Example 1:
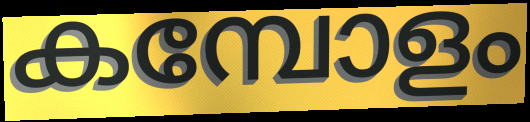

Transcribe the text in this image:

കമ്പോളം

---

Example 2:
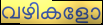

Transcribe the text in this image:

വഴികളോ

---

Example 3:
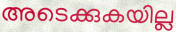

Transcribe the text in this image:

അടെക്കുകയില്ല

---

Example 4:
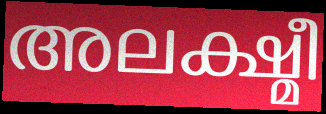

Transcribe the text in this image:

അലക്ഷ്മീ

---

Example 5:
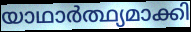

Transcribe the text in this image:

യാഥാർത്ഥ്യമാക്കി